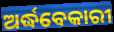
ଅର୍ଦ୍ଧବେକାରୀ